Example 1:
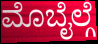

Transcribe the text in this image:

ಮೊಬೈಲ್ಗೆ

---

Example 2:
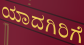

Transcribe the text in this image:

ಯಾದಗಿರಿಗೆ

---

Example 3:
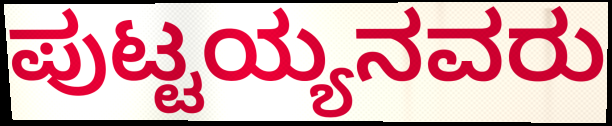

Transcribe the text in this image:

ಪುಟ್ಟಯ್ಯನವರು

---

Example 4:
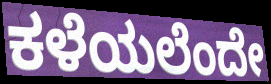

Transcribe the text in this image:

ಕಳೆಯಲೆಂದೇ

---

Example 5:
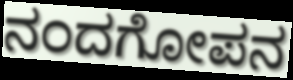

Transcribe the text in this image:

ನಂದಗೋಪನ